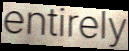
entirely